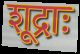
शूद्राः